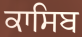
ਕਾਸਿਬ